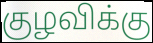
குழவிக்கு